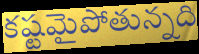
కష్టమైపోతున్నది